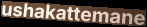
ushakattemane